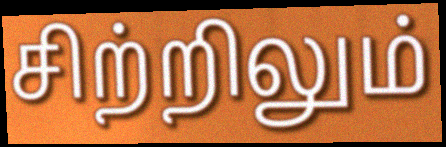
சிற்றிலும்